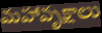
మహావృక్షాలు